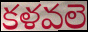
కళవలె